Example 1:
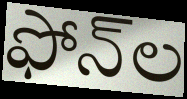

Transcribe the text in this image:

ఫోన్‌ల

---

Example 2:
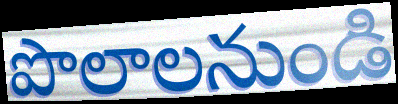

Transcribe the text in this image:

పొలాలనుండి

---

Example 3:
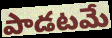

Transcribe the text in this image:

పాడటమే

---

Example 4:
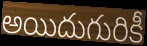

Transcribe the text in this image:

అయిదుగురికీ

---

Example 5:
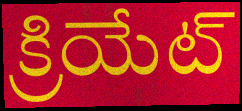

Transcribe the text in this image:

క్రియేట్